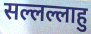
सल्लल्लाहु